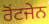
ਰੋਂਟਜੇਨ